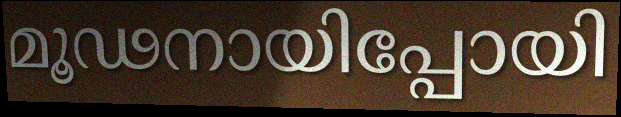
മൂഢനായിപ്പോയി